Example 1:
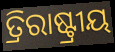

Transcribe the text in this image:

ତ୍ରିରାଷ୍ଟ୍ରୀୟ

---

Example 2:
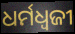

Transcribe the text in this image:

ଧର୍ମଧ୍ୱଜୀ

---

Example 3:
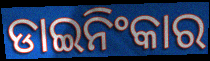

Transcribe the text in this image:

ଡାଇନିଂକାର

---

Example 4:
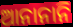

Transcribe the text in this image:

ଆନାନାନି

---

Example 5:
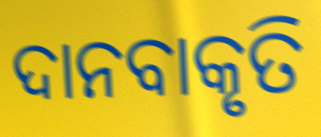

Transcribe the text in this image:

ଦାନବାକୃତି